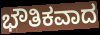
ಭೌತಿಕವಾದ